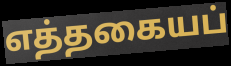
எத்தகையப்